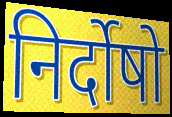
निर्दोषो